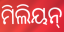
ମିଲିୟନ୍